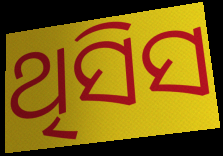
ଥିସିସ